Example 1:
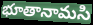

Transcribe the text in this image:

భూతానామసి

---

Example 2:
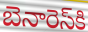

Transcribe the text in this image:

బెనారెస్‌కి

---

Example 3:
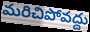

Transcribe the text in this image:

మరిచిపోవద్దు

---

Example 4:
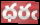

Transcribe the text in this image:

ధరఁ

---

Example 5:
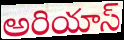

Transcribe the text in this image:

అరియాస్